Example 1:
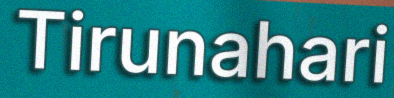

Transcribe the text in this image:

Tirunahari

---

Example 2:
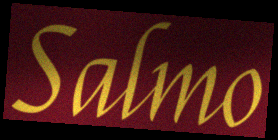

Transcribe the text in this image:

Salmo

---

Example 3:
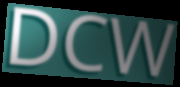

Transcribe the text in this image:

DCW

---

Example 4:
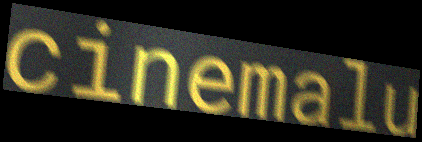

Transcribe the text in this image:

cinemalu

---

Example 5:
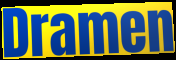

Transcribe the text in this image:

Dramen